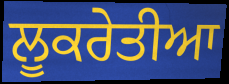
ਲੂਕਰੇਤੀਆ